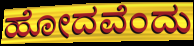
ಹೋದವೆಂದು